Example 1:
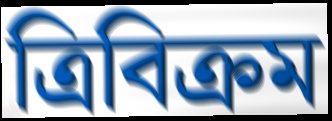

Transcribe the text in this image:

ত্রিবিক্রম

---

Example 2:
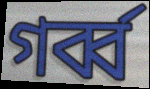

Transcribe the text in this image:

গর্ব্ব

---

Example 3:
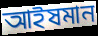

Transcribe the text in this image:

আইষমান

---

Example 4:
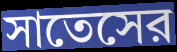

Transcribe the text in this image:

সাতেসের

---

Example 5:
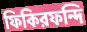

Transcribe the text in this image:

ফিকিরফন্দি